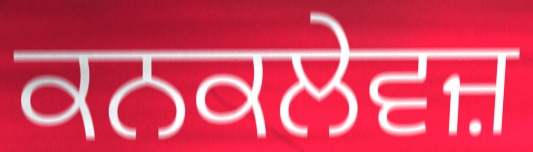
ਕਨਕਲੇਵਜ਼